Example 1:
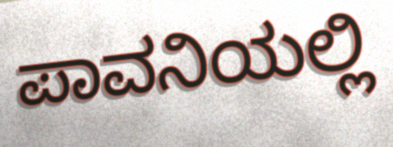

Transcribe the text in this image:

ಪಾವನಿಯಲ್ಲಿ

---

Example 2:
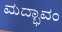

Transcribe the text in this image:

ಮದ್ಭಾವಂ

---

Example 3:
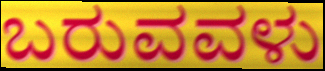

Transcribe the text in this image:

ಬರುವವಳು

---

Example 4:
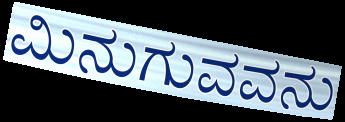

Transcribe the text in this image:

ಮಿನುಗುವವನು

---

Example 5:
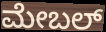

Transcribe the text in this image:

ಮೇಬಲ್